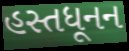
હસ્તધૂનન